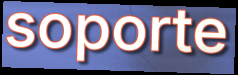
soporte